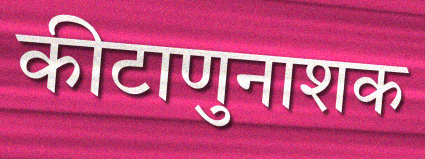
कीटाणुनाशक